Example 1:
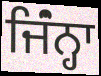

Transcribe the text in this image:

ਜਿੰਂਨ੍ਹਾ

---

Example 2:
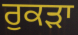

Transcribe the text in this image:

ਰੁਕੜਾ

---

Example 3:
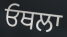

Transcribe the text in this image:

ਓਥਲਾ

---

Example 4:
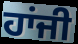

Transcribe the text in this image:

ਹਾਂਜੀ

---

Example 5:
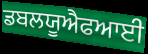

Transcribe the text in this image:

ਡਬਲਯੂਐਫਆਈ